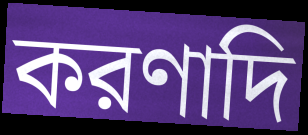
করণাদি